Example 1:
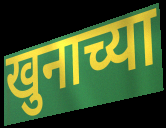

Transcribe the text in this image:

खुनाच्या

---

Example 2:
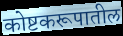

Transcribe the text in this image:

कोष्टकरूपातील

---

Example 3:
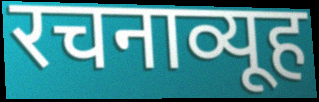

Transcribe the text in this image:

रचनाव्यूह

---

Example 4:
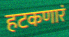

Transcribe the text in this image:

हटकणारं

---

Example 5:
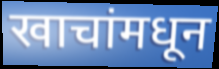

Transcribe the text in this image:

खाचांमधून